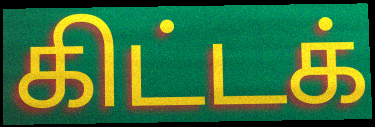
கிட்டக்